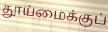
தூய்மைக்குப்